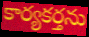
కార్యకర్తను